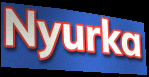
Nyurka